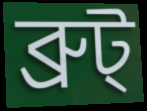
ব্রুট্